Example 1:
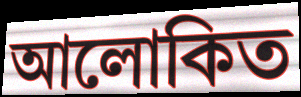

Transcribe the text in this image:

আলোকিত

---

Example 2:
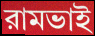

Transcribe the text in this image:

রামভাই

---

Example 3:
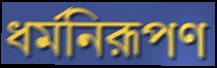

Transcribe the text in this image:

ধর্মনিরূপণ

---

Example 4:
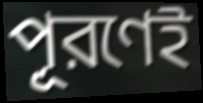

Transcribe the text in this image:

পূরণেই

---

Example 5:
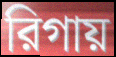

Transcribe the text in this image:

রিগায়